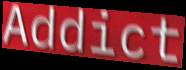
Addict